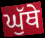
ਘੁੱਥੇ